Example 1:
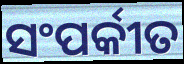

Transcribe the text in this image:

ସଂପର୍କୀତ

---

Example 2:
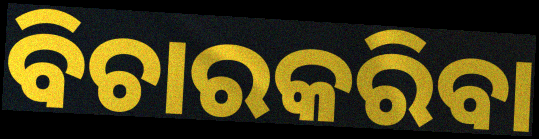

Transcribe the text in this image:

ବିଚାରକରିବା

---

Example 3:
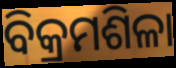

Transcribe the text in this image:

ବିକ୍ରମଶିଳା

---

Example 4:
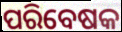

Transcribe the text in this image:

ପରିବେଷକ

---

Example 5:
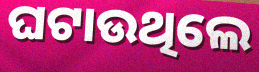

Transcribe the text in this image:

ଘଟାଉଥିଲେ